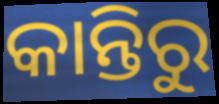
କାନ୍ତିରୁ